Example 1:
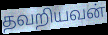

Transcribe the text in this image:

தவறியவன்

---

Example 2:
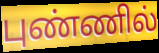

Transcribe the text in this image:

புண்ணில்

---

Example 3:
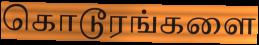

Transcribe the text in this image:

கொடூரங்களை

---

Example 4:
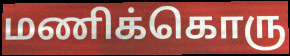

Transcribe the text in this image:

மணிக்கொரு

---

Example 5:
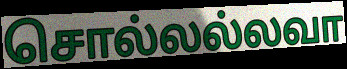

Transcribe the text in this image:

சொல்லல்லவா